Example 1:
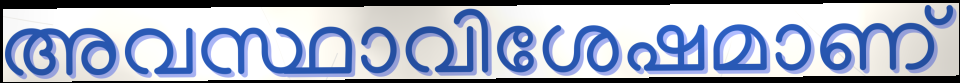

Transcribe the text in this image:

അവസ്ഥാവിശേഷമാണ്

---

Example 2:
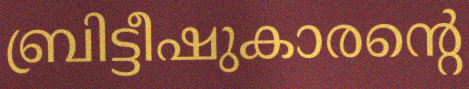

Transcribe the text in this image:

ബ്രിട്ടീഷുകാരന്റെ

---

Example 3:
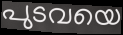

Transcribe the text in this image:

പുടവയെ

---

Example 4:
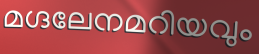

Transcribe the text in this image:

മഗ്ദലേനമറിയവും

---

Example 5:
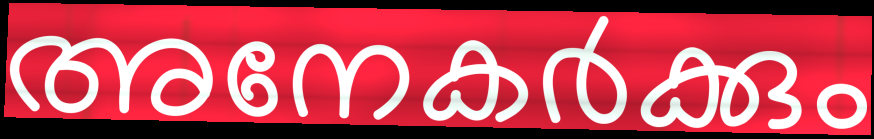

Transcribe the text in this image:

അനേകർക്കും